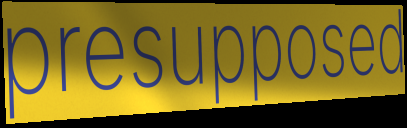
presupposed